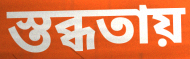
স্তব্ধতায়